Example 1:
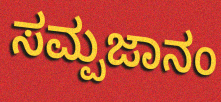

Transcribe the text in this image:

ಸಮ್ಪಜಾನಂ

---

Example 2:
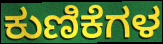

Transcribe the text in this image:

ಕುಣಿಕೆಗಳ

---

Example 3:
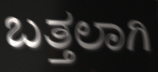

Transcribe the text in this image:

ಬತ್ತಲಾಗಿ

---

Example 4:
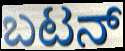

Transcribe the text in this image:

ಬಟನ್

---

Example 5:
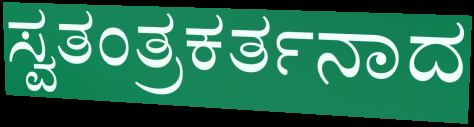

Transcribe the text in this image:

ಸ್ವತಂತ್ರಕರ್ತನಾದ